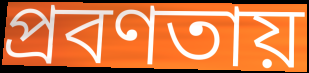
প্রবণতায়